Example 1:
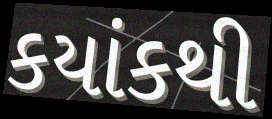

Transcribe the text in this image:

કયાંકથી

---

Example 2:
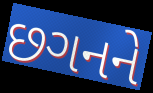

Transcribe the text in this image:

છગનને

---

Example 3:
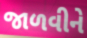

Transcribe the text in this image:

જાળવીને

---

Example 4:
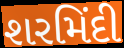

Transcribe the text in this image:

શરમિંદી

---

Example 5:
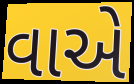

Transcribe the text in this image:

વાએ